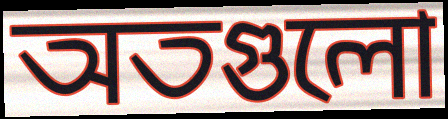
অতগুলো